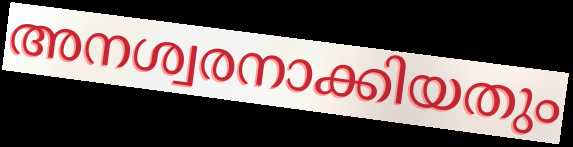
അനശ്വരനാക്കിയതും